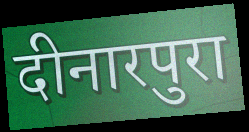
दीनारपुरा